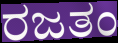
ರಜತಂ